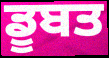
ਡੂਬਤ